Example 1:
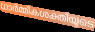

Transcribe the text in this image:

ധാർമ്മികശക്തിയുടെ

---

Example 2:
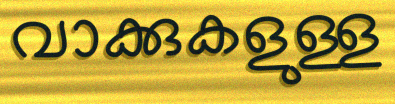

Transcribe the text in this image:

വാക്കുകളുള്ള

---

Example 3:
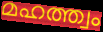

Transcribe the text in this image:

മഹത്ത്വം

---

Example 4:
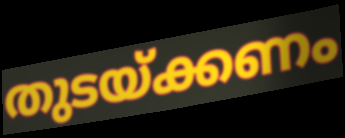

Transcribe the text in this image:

തുടയ്ക്കണം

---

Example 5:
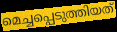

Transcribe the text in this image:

മെച്ചപ്പെടുത്തിയത്